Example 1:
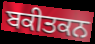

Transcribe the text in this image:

ਬਕੀਤਕਨ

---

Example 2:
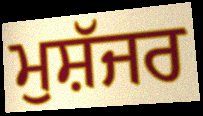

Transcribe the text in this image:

ਮੁਸ਼ੱਜਰ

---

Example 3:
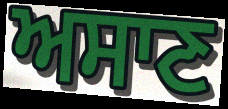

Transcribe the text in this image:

ਅਸਾਣ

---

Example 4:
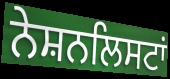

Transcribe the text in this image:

ਨੇਸ਼ਨਲਿਸਟਾਂ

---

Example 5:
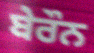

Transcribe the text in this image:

ਬੇਰੌਨ